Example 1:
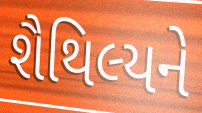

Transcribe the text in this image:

શૈથિલ્યને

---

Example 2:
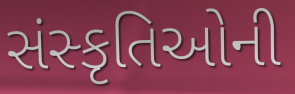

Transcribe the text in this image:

સંસ્કૃતિઓની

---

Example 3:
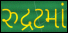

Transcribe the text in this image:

રુદ્રટમાં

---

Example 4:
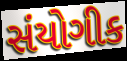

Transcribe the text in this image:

સંયોગીક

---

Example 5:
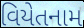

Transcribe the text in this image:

વિયેતનામ